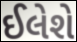
ઈલેશે